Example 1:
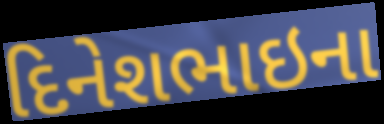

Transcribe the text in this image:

દિનેશભાઇના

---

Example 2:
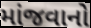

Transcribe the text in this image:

માંજવાનો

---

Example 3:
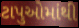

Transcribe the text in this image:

ટાપુઓમાંથી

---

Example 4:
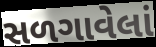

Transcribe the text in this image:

સળગાવેલાં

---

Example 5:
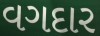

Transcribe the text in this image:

વગદાર